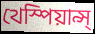
থেস্পিয়ান্স্